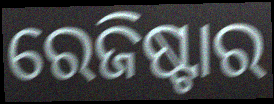
ରେଜିଷ୍ଟାର